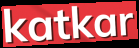
katkar